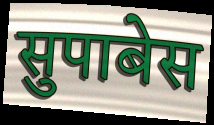
सुपाबेस